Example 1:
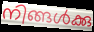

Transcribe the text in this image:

നിങ്ങൾക്കു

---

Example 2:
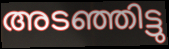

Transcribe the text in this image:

അടഞ്ഞിട്ടു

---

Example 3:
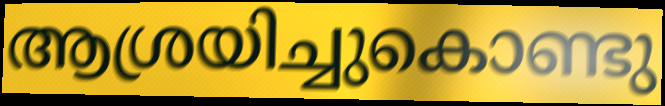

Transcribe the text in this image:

ആശ്രയിച്ചുകൊണ്ടു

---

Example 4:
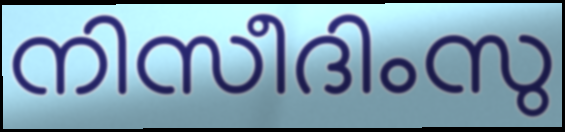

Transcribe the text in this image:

നിസീദിംസു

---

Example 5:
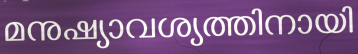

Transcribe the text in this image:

മനുഷ്യാവശ്യത്തിനായി